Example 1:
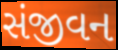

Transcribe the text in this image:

સંજીવન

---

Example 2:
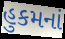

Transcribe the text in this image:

હુકમનાં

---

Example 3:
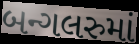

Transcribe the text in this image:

બન્ગલરુમાં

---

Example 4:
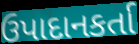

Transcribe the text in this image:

ઉપાદાનકર્તા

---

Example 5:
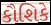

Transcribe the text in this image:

કૌશિકે